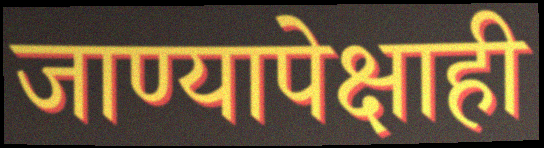
जाण्यापेक्षाही